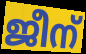
ജീന്